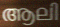
ആലി